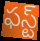
ఫస్ట్